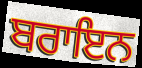
ਬਰਾਇਨ